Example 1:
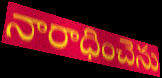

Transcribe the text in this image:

నారాధించెను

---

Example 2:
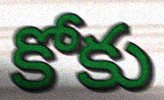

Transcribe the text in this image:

కోకు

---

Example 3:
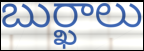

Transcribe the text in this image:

బుర్ఖాలు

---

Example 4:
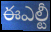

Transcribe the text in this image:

ఈఎల్టీ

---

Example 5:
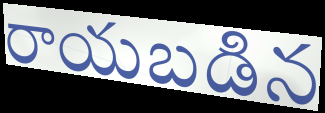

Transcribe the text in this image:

రాయబడిన